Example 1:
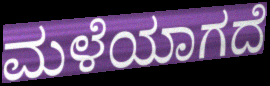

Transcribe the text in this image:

ಮಳೆಯಾಗದೆ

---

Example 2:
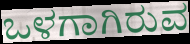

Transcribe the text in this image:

ಒಳಗಾಗಿರುವ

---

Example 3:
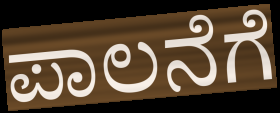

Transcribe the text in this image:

ಪಾಲನೆಗೆ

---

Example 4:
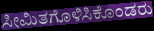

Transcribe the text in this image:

ಸೀಮಿತಗೊಳಿಸಿಕೊಂಡರು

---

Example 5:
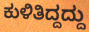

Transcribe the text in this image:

ಕುಳಿತಿದ್ದದ್ದು